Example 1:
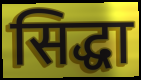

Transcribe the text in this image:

सिद्धा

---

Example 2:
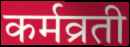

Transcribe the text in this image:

कर्मव्रती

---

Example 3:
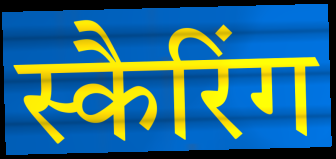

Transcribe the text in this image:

स्कैरिंग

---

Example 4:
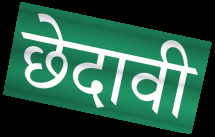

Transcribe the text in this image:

छेदावी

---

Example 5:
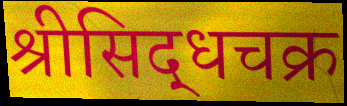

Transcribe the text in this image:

श्रीसिद्धचक्र